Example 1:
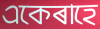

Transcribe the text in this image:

একেৰাহে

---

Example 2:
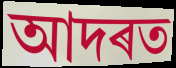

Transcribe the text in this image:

আদৰত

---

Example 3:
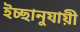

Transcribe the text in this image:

ইচ্ছানুযায়ী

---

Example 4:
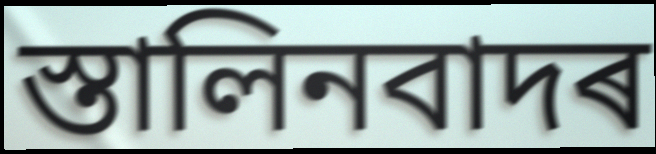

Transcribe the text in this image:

স্তালিনবাদৰ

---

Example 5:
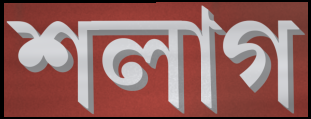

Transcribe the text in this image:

শলাগ